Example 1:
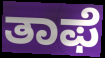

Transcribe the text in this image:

ತಾಫೆ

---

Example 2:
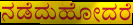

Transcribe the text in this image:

ನಡೆದುಹೋದರೆ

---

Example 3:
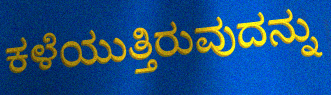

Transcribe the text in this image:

ಕಳೆಯುತ್ತಿರುವುದನ್ನು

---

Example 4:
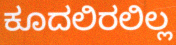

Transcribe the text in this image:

ಕೂದಲಿರಲಿಲ್ಲ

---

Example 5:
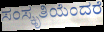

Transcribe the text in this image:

ಸಂಸ್ಕೃತಿಯೆಂದರೆ